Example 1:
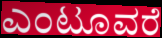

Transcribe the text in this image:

ಎಂಟೂವರೆ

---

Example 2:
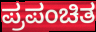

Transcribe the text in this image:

ಪ್ರಪಂಚಿತ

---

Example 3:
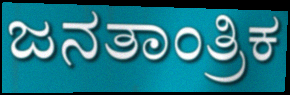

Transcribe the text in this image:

ಜನತಾಂತ್ರಿಕ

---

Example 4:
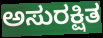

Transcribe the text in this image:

ಅಸುರಕ್ಷಿತ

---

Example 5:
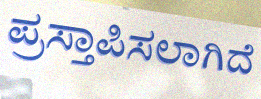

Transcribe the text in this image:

ಪ್ರಸ್ತಾಪಿಸಲಾಗಿದೆ